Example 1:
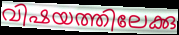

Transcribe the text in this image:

വിഷയത്തിലേക്കു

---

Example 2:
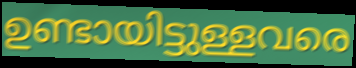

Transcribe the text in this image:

ഉണ്ടായിട്ടുള്ളവരെ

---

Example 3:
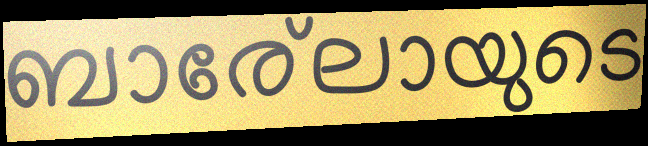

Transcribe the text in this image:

ബാര്ലോയുടെ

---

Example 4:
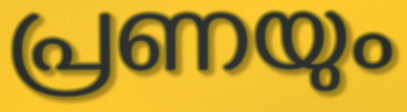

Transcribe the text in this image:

പ്രണയും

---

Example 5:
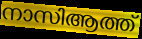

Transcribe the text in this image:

നാസിആത്ത്